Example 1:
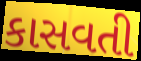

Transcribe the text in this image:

કાસવતી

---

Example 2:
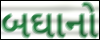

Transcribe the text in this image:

બઘાનો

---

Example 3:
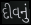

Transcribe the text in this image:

દીવનું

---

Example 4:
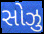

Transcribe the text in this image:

સોઝુ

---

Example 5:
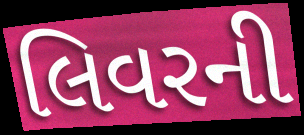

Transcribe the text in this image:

લિવરની